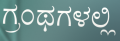
ಗ್ರಂಥಗಳಲ್ಲಿ